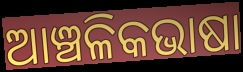
ଆଞ୍ଚଳିକଭାଷା